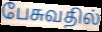
பேசுவதில்